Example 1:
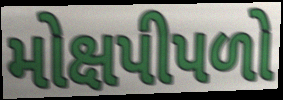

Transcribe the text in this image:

મોક્ષપીપળો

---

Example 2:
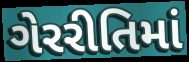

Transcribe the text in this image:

ગેરરીતિમાં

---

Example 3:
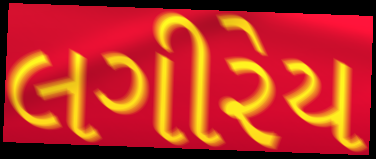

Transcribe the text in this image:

લગીરેય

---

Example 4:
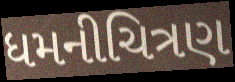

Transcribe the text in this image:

ધમનીચિત્રણ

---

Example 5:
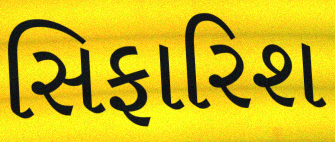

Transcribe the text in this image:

સિફારિશ